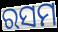
ରସମ